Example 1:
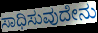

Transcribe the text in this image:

ಸಾಧಿಸುವುದೇನು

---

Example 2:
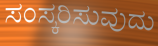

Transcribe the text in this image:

ಸಂಸ್ಕರಿಸುವುದು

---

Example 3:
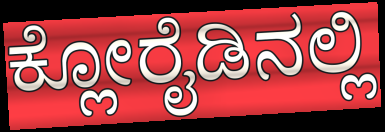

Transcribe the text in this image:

ಕ್ಲೋರೈಡಿನಲ್ಲಿ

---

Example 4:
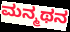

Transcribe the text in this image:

ಮನ್ಮಥನ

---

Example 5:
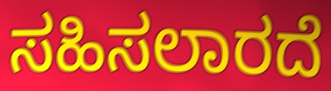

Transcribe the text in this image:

ಸಹಿಸಲಾರದೆ